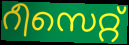
റീസെറ്റ്